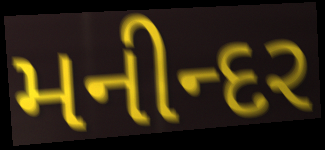
મનીન્દર